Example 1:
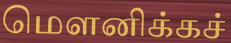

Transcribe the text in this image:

மௌனிக்கச்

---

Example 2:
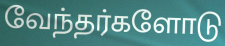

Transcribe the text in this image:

வேந்தர்களோடு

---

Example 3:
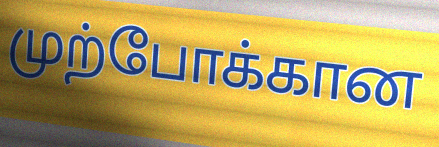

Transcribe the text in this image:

முற்போக்கான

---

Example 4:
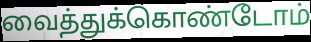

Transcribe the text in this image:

வைத்துக்கொண்டோம்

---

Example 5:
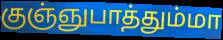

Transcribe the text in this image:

குஞ்ஞுபாத்தும்மா